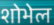
शोभेल